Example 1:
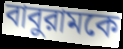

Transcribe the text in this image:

বাবুরামকে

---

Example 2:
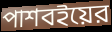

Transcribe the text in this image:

পাশবইয়ের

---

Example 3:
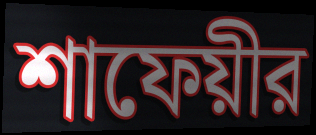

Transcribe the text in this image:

শাফেয়ীর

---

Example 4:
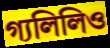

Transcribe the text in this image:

গ্যলিলিও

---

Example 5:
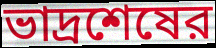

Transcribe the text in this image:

ভাদ্রশেষের